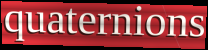
quaternions